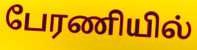
பேரணியில்